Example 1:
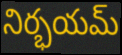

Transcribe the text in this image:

నిర్భయమ్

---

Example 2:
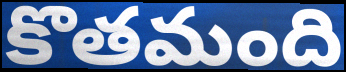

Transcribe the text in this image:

కొతమంది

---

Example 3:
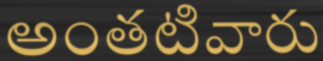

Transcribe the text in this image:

అంతటివారు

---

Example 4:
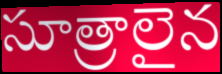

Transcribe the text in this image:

సూత్రాలైన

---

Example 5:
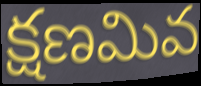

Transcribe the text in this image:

క్షణమివ